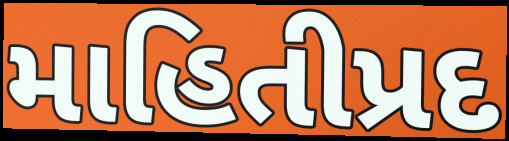
માહિતીપ્રદ